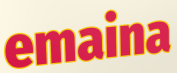
emaina